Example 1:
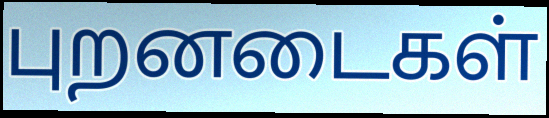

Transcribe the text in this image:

புறனடைகள்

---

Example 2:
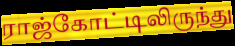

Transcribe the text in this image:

ராஜ்கோட்டிலிருந்து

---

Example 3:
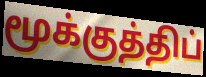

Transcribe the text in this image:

மூக்குத்திப்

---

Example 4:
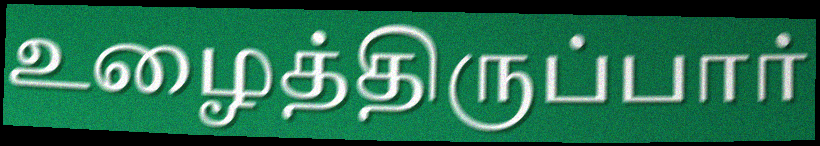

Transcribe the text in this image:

உழைத்திருப்பார்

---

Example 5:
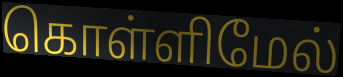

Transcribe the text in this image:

கொள்ளிமேல்